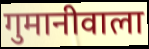
गुमानीवाला